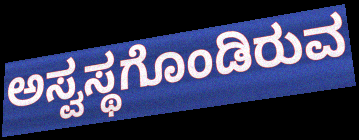
ಅಸ್ವಸ್ಥಗೊಂಡಿರುವ